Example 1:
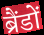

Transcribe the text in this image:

ब्रैंडों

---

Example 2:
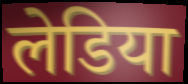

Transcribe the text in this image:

लेडिया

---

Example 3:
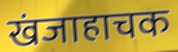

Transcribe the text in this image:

खंजाहाचक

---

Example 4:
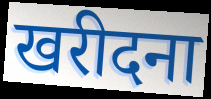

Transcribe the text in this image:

खरीदना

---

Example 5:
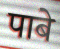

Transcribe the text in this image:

पाबे